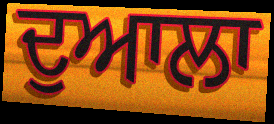
ਦੁਆਲਾ